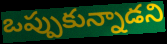
ఒప్పుకున్నాడని